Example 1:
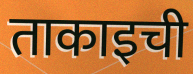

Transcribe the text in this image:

ताकाइची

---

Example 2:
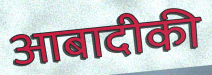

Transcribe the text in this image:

आबादीकी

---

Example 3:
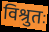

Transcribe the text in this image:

विश्रुतः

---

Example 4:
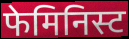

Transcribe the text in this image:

फेमिनिस्ट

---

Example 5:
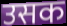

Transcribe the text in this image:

उसक